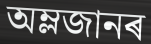
অম্লজানৰ